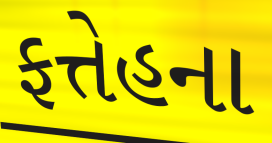
ફત્તેહના